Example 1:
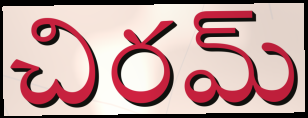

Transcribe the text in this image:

చిరమ్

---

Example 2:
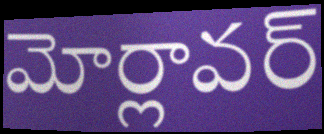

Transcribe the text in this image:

మోర్లావర్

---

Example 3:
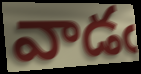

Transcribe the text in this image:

వాడఁ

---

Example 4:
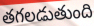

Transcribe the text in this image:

తగలడుతుంది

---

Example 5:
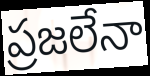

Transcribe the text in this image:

ప్రజలేనా